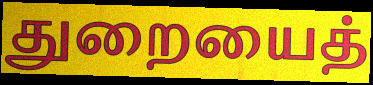
துறையைத்